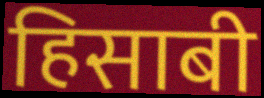
हिसाबी